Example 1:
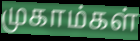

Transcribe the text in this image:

முகாம்கள்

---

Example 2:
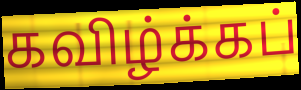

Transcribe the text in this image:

கவிழ்க்கப்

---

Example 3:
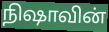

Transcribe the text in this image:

நிஷாவின்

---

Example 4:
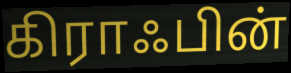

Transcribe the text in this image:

கிராஃபின்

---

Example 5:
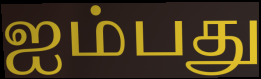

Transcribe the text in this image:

ஐம்பது